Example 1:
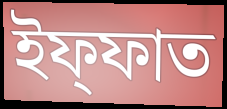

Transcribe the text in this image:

ইফ্ফাত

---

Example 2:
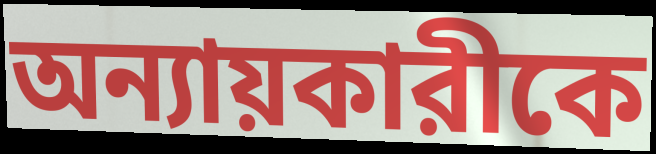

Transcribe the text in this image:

অন্যায়কারীকে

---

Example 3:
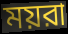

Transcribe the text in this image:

ময়রা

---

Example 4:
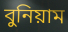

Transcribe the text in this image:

বুনিয়াম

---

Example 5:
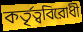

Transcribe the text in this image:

কর্তৃত্ববিরোধী